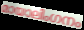
മായാലിംഗനം